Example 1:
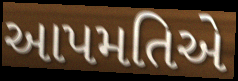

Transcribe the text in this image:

આપમતિએ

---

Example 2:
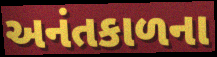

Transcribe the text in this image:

અનંતકાળના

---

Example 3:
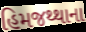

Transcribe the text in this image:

હિમજથ્થાના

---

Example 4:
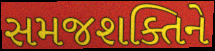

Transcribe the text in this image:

સમજશક્તિને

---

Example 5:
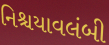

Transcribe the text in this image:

નિશ્ચયાવલંબી